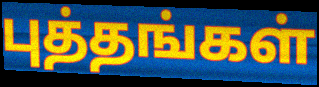
புத்தங்கள்